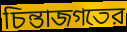
চিন্তাজগতের